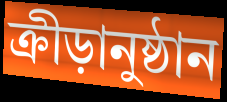
ক্ৰীড়ানুষ্ঠান